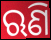
ଋଣି